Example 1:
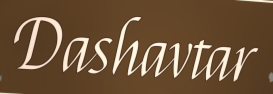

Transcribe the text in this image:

Dashavtar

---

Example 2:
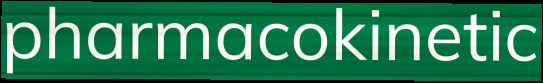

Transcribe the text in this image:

pharmacokinetic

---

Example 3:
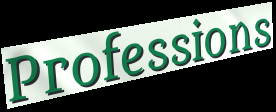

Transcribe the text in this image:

Professions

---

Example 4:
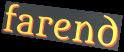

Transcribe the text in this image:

farend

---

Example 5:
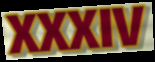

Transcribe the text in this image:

XXXIV